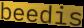
beedis